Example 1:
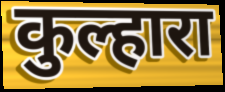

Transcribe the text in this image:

कुल्हारा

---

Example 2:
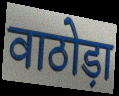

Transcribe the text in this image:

वाठोड़ा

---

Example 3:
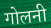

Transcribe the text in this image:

गोलनी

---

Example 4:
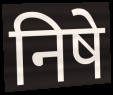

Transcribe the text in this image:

निषे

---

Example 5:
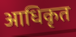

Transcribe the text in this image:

आधिकृत